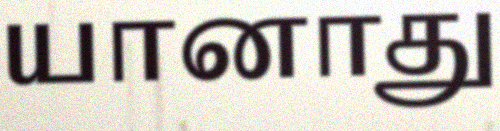
யானாது